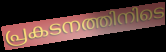
പ്രകടനത്തിനിടെ